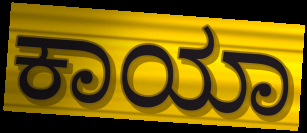
ಕಾಯಾ